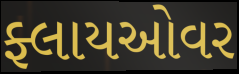
ફ્લાયઓવર